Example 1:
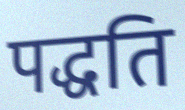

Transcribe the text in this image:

पद्धति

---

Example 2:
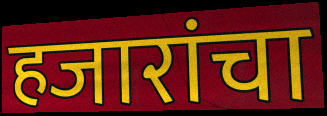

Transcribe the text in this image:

हजारांचा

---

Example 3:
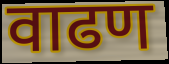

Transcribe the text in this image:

वाढण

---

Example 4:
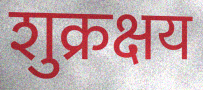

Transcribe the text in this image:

शुक्रक्षय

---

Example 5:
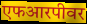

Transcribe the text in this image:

एफआरपीवर